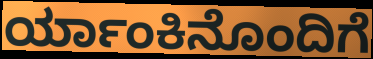
ರ್ಯಾಂಕಿನೊಂದಿಗೆ